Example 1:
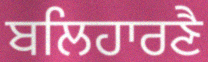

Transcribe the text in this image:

ਬਲਿਹਾਰਣੈ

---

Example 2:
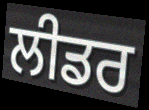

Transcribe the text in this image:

ਲੀਡਰ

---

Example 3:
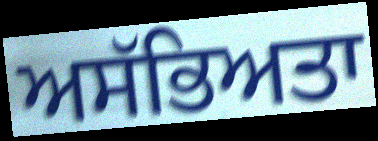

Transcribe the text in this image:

ਅਸੱਭਿਅਤਾ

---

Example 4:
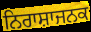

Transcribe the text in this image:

ਨਿਰਾਸ਼ਾਜਨਕ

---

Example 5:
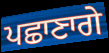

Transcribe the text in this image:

ਪਛਾਣਾਗੇ